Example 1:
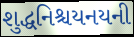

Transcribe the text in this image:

શુદ્ધનિશ્ચયનયની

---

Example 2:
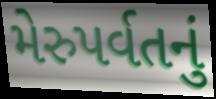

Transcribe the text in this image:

મેરુપર્વતનું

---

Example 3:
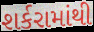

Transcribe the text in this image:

શર્કરામાંથી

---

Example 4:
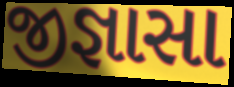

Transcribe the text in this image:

જીજ્ઞાસા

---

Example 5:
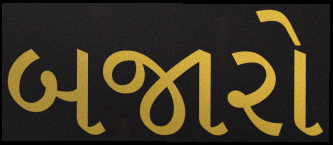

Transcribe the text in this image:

બજારો